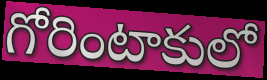
గోరింటాకులో